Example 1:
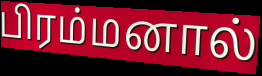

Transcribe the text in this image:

பிரம்மனால்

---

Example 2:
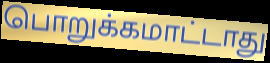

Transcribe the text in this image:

பொறுக்கமாட்டாது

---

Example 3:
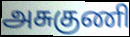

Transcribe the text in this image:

அசுகுணி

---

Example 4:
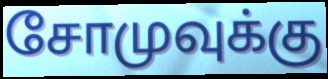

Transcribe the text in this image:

சோமுவுக்கு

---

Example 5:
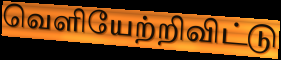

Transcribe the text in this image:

வெளியேற்றிவிட்டு